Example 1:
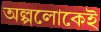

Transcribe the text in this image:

অল্পলোকেই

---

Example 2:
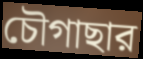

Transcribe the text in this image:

চৌগাছার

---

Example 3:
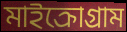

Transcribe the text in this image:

মাইক্রোগ্রাম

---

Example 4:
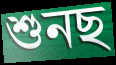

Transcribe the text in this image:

শুনছ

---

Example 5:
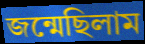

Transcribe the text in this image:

জন্মেছিলাম